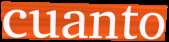
cuanto